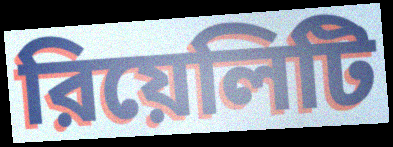
রিয়েলিটি